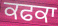
ਕਫਕਾ